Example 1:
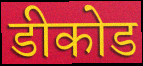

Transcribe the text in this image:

डीकोड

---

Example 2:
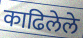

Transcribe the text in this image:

काढिलेले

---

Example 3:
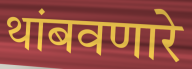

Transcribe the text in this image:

थांबवणारे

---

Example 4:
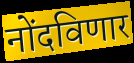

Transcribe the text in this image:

नोंदविणार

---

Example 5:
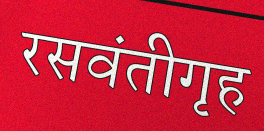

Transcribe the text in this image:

रसवंतीगृह